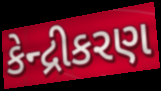
કેન્દ્રીકરણ